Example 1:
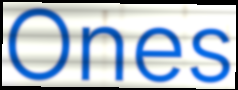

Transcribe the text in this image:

Ones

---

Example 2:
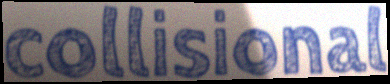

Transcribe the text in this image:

collisional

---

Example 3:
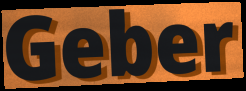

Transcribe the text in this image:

Geber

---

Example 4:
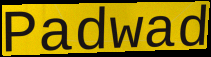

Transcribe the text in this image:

Padwad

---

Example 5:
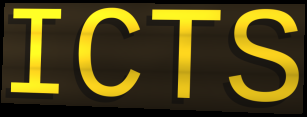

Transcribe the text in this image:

ICTS